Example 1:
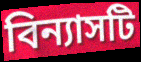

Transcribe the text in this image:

বিন্যাসটি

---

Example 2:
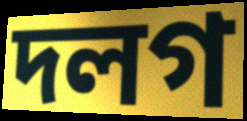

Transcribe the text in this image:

দলগ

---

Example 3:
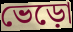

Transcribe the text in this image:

ভেড়ো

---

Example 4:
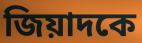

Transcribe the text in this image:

জিয়াদকে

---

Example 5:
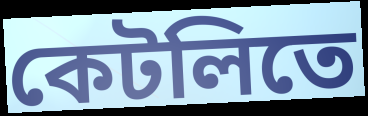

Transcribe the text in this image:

কেটলিতে